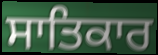
ਸਾਤਿਕਾਰ